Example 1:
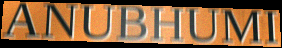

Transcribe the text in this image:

ANUBHUMI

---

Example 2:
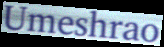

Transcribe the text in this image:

Umeshrao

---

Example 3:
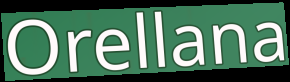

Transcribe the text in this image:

Orellana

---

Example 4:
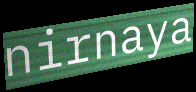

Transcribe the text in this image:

nirnaya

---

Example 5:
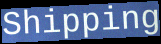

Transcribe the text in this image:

Shipping